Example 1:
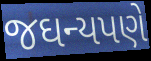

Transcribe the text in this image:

જઘન્યપણે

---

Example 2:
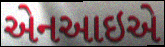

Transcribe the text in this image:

એનઆઇએ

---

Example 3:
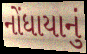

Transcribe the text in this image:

નોંધાયાનું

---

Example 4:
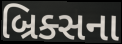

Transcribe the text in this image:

બ્રિક્સના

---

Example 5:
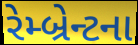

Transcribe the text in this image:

રેમ્બ્રેન્ટના